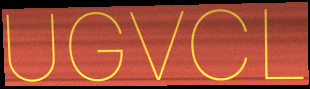
UGVCL